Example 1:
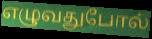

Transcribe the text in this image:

எழுவதுபோல்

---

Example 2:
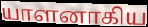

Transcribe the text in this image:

யாளனாகிய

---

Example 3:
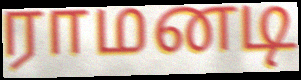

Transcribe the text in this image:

ராமனடி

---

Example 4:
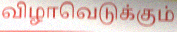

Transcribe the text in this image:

விழாவெடுக்கும்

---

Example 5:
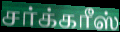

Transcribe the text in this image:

சர்க்கரீஸ்